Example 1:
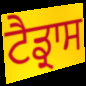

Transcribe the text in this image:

ਟੈਡ੍ਰਾਸ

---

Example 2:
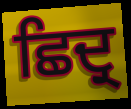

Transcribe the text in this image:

ਛਿਦ੍ਰ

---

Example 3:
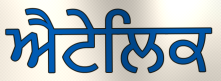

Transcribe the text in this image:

ਐਟੇਲਿਕ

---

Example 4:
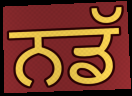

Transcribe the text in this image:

ਨਡੱ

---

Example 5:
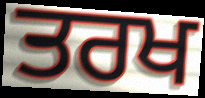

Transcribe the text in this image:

ਤਰਖ